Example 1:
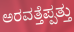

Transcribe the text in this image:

ಅರವತ್ತೆಪ್ಪತ್ತು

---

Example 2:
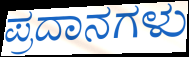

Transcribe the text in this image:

ಪ್ರದಾನಗಳು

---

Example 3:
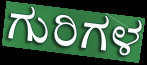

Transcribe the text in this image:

ಗುರಿಗಳ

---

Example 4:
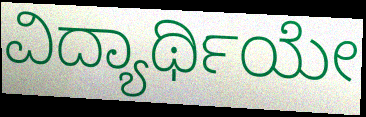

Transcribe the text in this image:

ವಿದ್ಯಾರ್ಥಿಯೇ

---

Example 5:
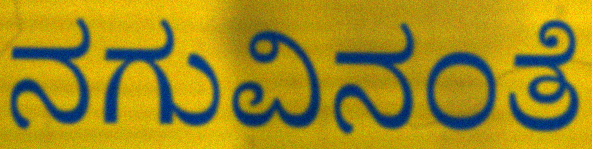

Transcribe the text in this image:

ನಗುವಿನಂತೆ